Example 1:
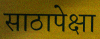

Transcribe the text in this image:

साठापेक्षा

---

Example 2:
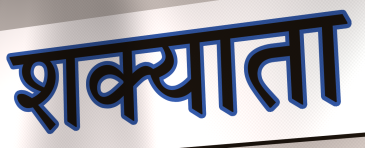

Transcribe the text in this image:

शक्याता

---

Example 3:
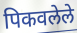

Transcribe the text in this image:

पिकवलेले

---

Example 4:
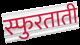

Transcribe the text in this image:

स्फुरताती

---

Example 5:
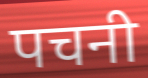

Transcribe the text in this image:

पचनी